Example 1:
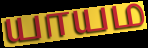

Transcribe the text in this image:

யாயம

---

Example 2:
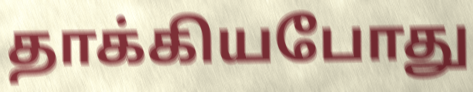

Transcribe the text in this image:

தாக்கியபோது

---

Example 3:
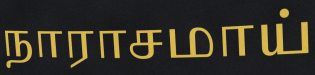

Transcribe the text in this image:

நாராசமாய்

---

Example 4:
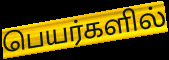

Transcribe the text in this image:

பெயர்களில்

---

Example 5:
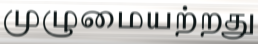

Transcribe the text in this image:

முழுமையற்றது